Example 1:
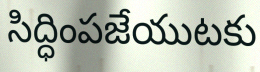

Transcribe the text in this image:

సిద్ధింపజేయుటకు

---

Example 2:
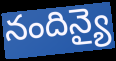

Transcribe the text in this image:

నందిన్యై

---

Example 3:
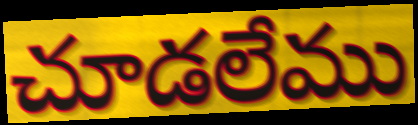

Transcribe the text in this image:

చూడలేము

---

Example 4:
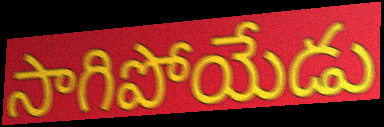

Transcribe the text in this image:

సాగిపోయేడు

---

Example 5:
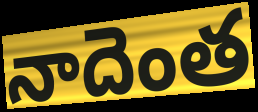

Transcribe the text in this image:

నాదెంత